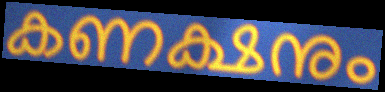
കണക്ഷനും